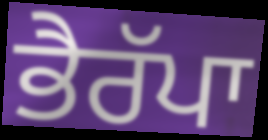
ਭੈਰੱਪਾ